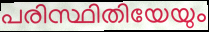
പരിസ്ഥിതിയേയും